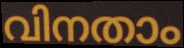
വിനതാം